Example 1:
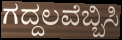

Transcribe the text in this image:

ಗದ್ದಲವೆಬ್ಬಿಸಿ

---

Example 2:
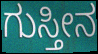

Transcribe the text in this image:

ಗುಸ್ತೀನ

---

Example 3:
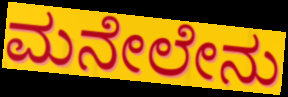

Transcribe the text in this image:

ಮನೇಲೇನು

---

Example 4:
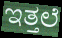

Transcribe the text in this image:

ಇತ್ತಲೆ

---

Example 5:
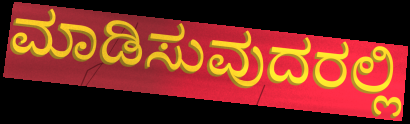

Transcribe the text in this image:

ಮಾಡಿಸುವುದರಲ್ಲಿ